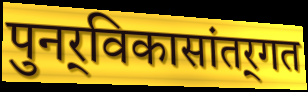
पुनर्विकासांतर्गत